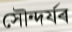
সৌন্দৰ্যৰ